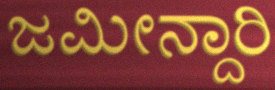
ಜಮೀನ್ದಾರಿ